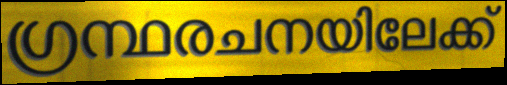
ഗ്രന്ഥരചനയിലേക്ക്